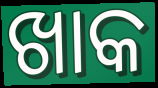
ଖାକ